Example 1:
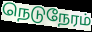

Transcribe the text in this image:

நெடுநேரம்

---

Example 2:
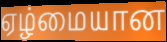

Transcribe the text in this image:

ஏழ்மையான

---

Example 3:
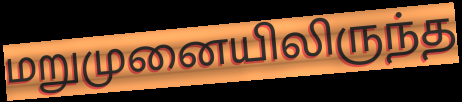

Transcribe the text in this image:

மறுமுனையிலிருந்த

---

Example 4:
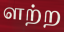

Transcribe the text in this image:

ளற்ற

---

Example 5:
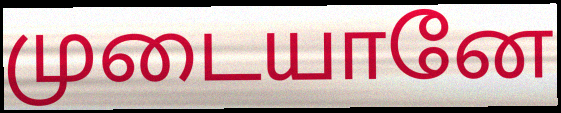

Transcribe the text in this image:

முடையானே